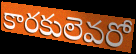
కారకులెవరో